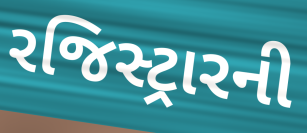
રજિસ્ટ્રારની